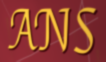
ANS